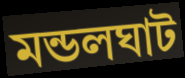
মন্ডলঘাট